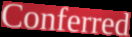
Conferred